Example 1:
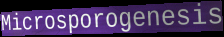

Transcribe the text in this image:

Microsporogenesis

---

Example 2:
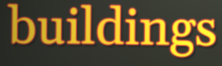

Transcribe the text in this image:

buildings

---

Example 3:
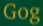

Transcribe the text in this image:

Gog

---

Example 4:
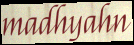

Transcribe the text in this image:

madhyahn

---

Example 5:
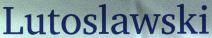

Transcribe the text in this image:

Lutoslawski